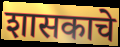
शासकाचे